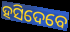
ହସିଦେବେ